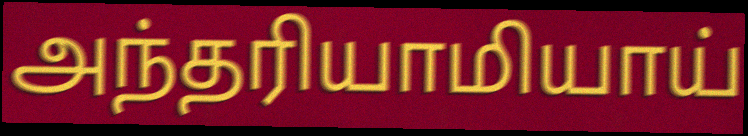
அந்தரியாமியாய்